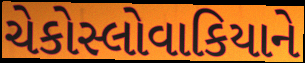
ચેકોસ્લોવાકિયાને